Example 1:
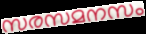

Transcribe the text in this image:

സരസമനസം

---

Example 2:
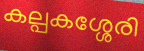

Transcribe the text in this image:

കല്പകശ്ശേരി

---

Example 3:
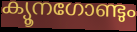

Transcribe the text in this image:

ക്യൂനഗോണ്ടും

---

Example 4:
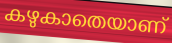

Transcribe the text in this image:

കഴുകാതെയാണ്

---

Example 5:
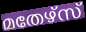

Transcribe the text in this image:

മതേഴ്സ്